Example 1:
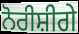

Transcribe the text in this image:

ਨੋਰੀਸ਼ੀਗੇ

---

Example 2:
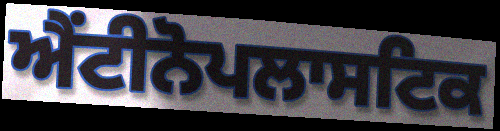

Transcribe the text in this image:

ਐਂਟੀਨੋਪਲਾਸਟਿਕ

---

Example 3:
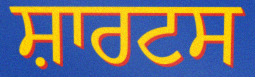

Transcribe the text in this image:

ਸ਼ਾਰਟਸ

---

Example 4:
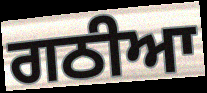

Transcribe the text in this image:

ਗਠੀਆ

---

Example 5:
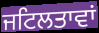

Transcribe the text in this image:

ਜਟਿਲਤਾਵਾਂ